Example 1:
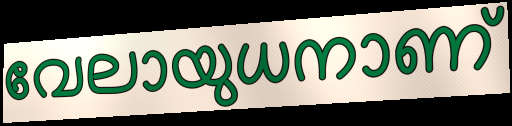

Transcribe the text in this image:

വേലായുധനാണ്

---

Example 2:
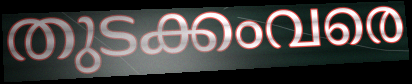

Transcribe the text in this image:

തുടക്കംവരെ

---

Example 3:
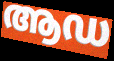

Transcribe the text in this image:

ആഡ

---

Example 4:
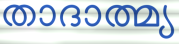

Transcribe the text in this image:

താദാത്മ്യ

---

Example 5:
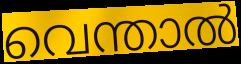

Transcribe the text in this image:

വെന്താൽ